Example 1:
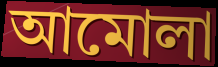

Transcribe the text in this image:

আমোলা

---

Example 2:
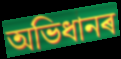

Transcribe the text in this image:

অভিধানৰ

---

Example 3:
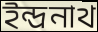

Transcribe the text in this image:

ইন্দ্ৰনাথ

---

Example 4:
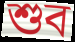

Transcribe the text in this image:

শুব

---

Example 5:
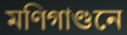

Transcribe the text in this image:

মণিগাণ্ডনে